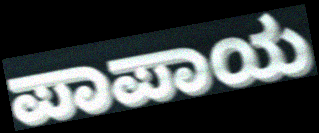
ಪಾಪಾಯ